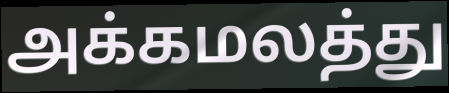
அக்கமலத்து